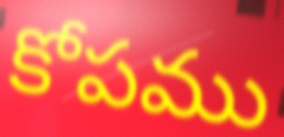
కోపము